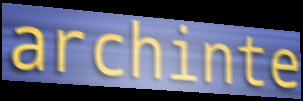
archinte